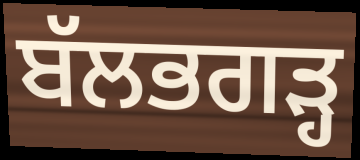
ਬੱਲਭਗੜ੍ਹ